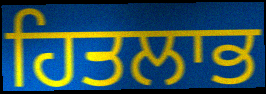
ਹਿਤਲਾਭ